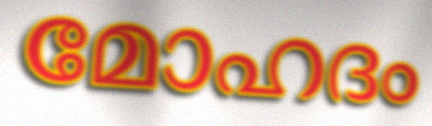
മോഹദം